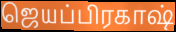
ஜெயப்பிரகாஷ்